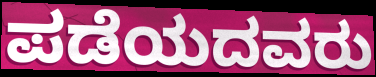
ಪಡೆಯದವರು